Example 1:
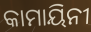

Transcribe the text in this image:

କାମାୟିନୀ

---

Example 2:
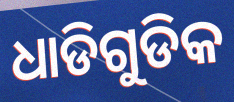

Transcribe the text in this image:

ଧାଡିଗୁଡିକ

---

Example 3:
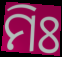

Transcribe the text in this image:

ମିଃ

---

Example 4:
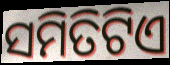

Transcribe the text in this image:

ସମିତିଟିଏ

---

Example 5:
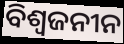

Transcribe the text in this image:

ବିଶ୍ୱଜନୀନ